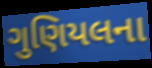
ગુણિયલના